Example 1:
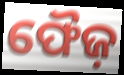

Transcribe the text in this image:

ଫୈଜ଼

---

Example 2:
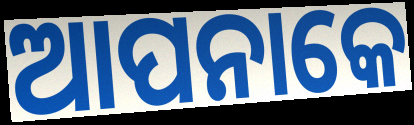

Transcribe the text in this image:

ଆପନାକେ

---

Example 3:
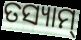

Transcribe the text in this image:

ତସ୍ୟାମ୍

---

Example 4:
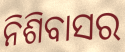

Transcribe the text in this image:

ନିଶିବାସର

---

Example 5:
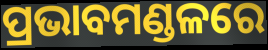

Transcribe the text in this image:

ପ୍ରଭାବମଣ୍ଡଳରେ